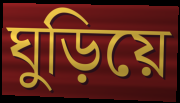
ঘুড়িয়ে